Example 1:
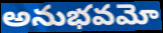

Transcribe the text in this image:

అనుభవమో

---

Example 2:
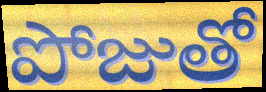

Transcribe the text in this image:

పోజుతో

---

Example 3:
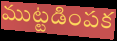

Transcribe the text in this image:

ముట్టడింపక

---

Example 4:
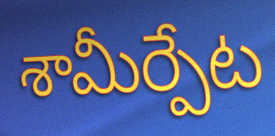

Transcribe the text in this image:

శామీర్పేట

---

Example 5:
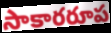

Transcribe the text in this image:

సాకారరూప